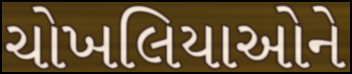
ચોખલિયાઓને